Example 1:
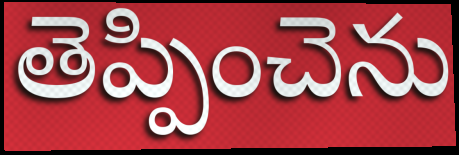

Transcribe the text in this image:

తెప్పించెను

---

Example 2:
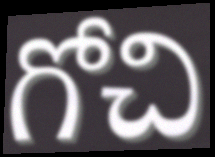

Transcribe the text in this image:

గోచి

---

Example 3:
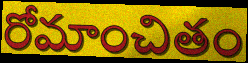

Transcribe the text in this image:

రోమాంచితం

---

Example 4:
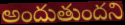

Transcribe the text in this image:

అందుతుందని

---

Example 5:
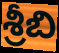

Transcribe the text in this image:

శ్రీబి